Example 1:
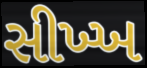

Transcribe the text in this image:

સીખ્ખ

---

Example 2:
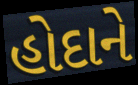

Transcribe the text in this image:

હોદાને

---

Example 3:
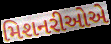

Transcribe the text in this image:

મિશનરીઓએ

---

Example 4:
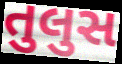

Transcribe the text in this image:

તુલુસ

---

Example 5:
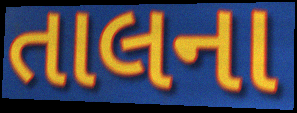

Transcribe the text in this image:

તાલના